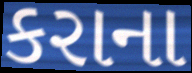
કરાના